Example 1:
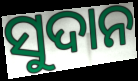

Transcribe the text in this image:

ସୁଦାନ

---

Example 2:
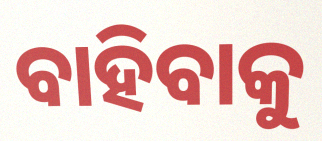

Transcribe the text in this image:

ବାହିବାକୁ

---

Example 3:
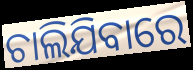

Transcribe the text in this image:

ଚାଲିଯିବାରେ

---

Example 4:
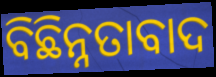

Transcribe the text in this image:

ବିଛିନ୍ନତାବାଦ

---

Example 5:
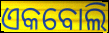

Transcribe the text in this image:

ଏକବୋଲି